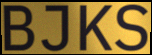
BJKS